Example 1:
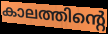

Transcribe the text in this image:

കാലത്തിന്റെ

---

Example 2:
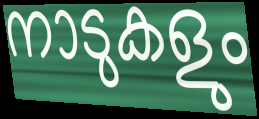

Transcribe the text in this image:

നാടുകളും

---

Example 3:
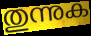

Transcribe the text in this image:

തുന്നുക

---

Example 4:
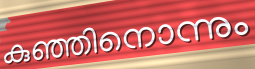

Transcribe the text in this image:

കുഞ്ഞിനൊന്നും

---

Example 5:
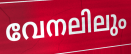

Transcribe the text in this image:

വേനലിലും